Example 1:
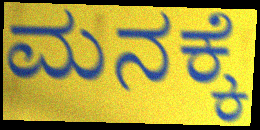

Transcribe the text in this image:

ಮನಕ್ಕೆ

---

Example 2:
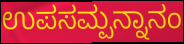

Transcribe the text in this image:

ಉಪಸಮ್ಪನ್ನಾನಂ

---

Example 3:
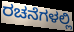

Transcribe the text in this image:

ರಚನೆಗಳಲ್ಲಿ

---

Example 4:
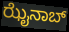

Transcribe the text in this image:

ಝೈನಾಬ್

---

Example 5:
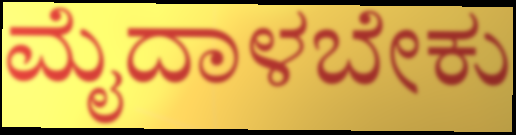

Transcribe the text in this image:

ಮೈದಾಳಬೇಕು